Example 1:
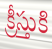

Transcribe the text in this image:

క్రీస్తుకి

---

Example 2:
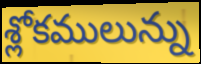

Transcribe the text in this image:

శ్లోకములున్ను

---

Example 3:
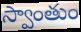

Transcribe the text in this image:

స్వాంతుం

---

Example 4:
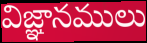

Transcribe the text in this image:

విజ్ఞానములు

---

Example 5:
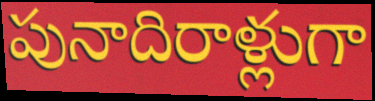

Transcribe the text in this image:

పునాదిరాళ్లుగా